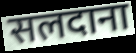
सलदाना